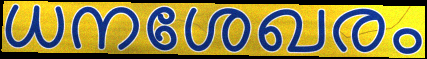
ധനശേഖരം